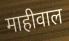
माहीवाल